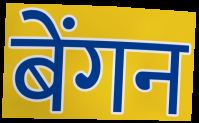
बेंगन